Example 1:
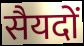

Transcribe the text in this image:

सैयदों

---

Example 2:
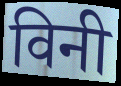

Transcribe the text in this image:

विनी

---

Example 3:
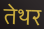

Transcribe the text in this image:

तेथर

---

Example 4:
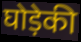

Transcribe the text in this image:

घोड़ेकी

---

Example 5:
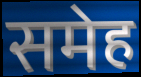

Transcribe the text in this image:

समेह